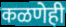
कळणेही